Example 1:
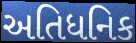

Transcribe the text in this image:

અતિધનિક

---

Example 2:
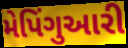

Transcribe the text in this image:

મેપિંગુઆરી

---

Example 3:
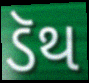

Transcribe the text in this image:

ડૅથ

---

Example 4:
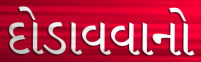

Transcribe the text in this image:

દોડાવવાનો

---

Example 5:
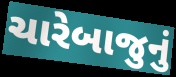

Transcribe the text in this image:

ચારેબાજુનું